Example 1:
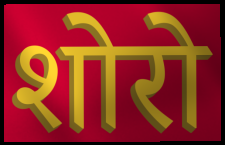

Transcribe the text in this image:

शोरो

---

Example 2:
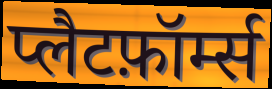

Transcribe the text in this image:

प्लैटफ़ॉर्म्स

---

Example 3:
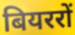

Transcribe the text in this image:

बियररों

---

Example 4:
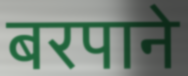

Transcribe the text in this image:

बरपाने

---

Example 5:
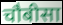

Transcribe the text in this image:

चौबीसा